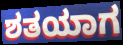
ಶತಯಾಗ